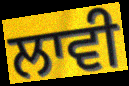
ਲਾਵੀ